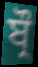
ਬ੍ਰੌ